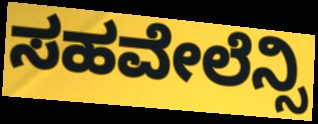
ಸಹವೇಲೆನ್ಸಿ